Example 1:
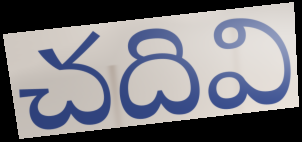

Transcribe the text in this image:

చదివి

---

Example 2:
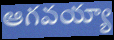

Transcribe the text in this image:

ఆగవయ్యా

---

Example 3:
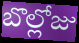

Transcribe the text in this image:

బొల్లోజు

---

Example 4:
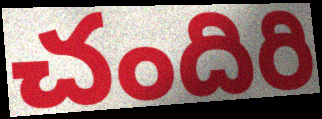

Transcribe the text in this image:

చందిరి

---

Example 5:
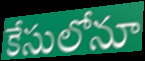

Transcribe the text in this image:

కేసులోనూ